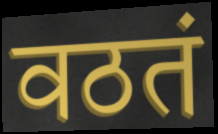
वठतं